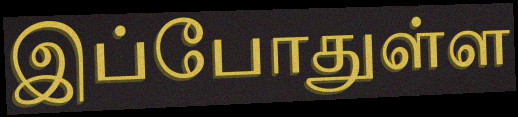
இப்போதுள்ள